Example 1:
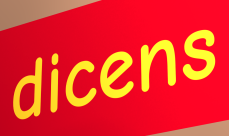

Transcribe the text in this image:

dicens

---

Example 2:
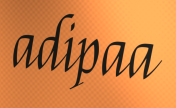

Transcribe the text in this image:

adipaa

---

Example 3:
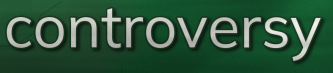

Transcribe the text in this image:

controversy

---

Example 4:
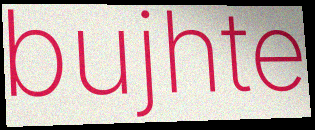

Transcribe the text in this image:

bujhte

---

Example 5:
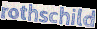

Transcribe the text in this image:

rothschild